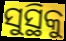
ସୁସ୍ଥିକୁ